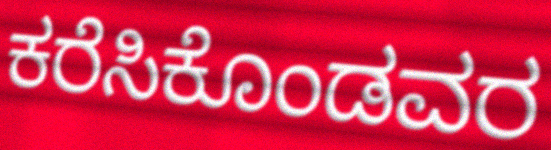
ಕರೆಸಿಕೊಂಡವರ